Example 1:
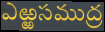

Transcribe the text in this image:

ఎఱ్ఱసముద్ర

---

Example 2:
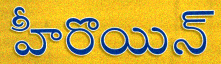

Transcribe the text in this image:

హీరొయిన్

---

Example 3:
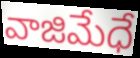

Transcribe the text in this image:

వాజిమేధే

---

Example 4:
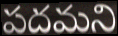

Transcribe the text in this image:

పదమని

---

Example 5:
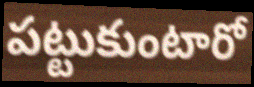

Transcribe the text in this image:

పట్టుకుంటారో